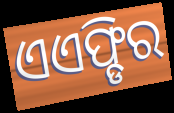
ଏଏଫ୍ଡିର